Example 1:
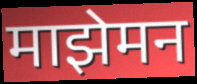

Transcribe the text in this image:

माझेमन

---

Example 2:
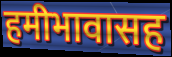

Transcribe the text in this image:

हमीभावासह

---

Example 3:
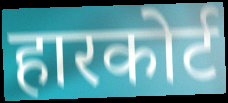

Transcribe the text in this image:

हारकोर्ट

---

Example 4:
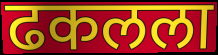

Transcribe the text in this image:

ढकलला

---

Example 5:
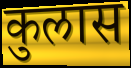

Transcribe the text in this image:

कुलास